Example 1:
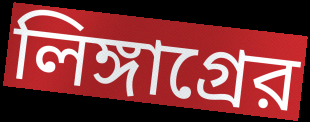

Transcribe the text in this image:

লিঙ্গাগ্রের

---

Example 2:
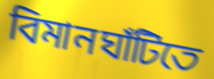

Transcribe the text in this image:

বিমানঘাঁটিতে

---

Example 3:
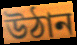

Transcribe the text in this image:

উঠান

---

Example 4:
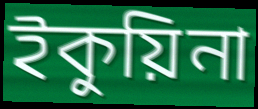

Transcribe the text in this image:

ইকুয়িনা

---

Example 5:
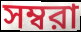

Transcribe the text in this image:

সম্বরা